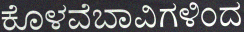
ಕೊಳವೆಬಾವಿಗಳಿಂದ